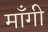
माँगी